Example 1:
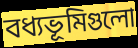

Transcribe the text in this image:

বধ্যভূমিগুলো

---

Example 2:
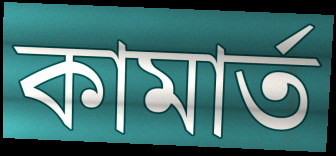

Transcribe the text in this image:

কামার্ত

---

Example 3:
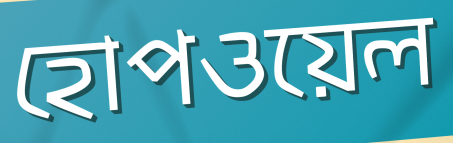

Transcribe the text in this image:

হোপওয়েল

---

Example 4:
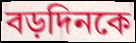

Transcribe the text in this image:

বড়দিনকে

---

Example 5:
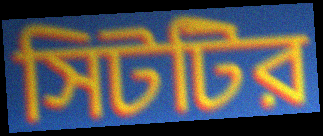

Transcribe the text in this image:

সিটটির